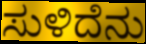
ಸುಳಿದೆನು